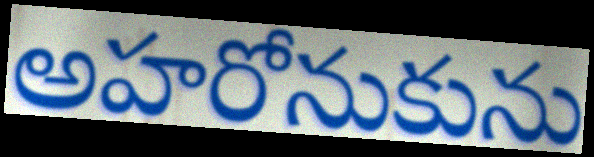
అహరోనుకును